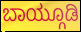
ಬಾಯ್ಗೂಡಿ